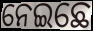
ନେଇଛେ